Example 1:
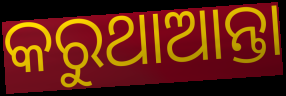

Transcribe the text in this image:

କରୁଥାଆନ୍ତା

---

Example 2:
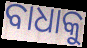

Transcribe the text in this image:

ବାଧାକୁ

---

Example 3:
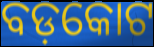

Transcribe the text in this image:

ବଡ଼କୋଟ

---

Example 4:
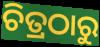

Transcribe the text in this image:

ଚିତ୍ରଠାରୁ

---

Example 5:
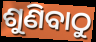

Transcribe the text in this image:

ଶୁଣିବାଠୁ